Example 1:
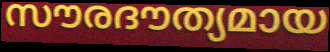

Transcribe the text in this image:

സൗരദൗത്യമായ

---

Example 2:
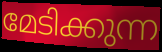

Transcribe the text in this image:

മേടിക്കുന്ന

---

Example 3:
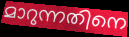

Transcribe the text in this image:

മാറുന്നതിനെ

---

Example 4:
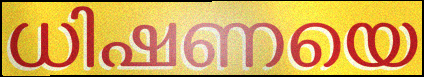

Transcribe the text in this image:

ധിഷണയെ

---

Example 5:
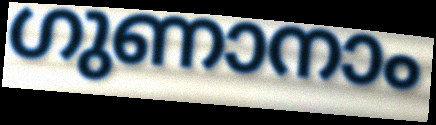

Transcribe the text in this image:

ഗുണാനാം